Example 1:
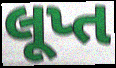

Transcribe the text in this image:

લૂપ્ત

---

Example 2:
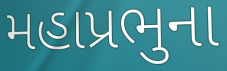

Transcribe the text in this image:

મહાપ્રભુના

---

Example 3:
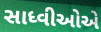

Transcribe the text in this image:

સાધ્વીઓએ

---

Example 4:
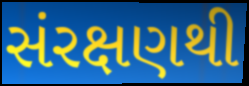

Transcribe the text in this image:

સંરક્ષણથી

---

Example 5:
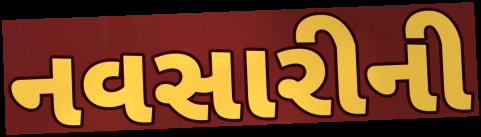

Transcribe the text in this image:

નવસારીની